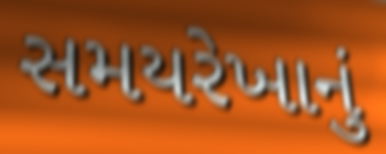
સમયરેખાનું